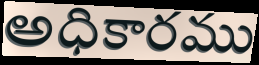
అధికారము